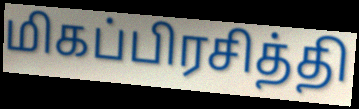
மிகப்பிரசித்தி